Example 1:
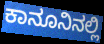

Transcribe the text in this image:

ಕಾನೂನಿನಲ್ಲಿ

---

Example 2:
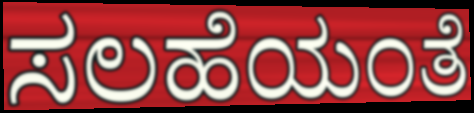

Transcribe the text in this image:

ಸಲಹೆಯಂತೆ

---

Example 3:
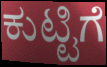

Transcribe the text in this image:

ಕುಟ್ಟಿಗೆ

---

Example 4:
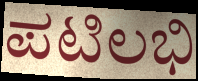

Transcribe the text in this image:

ಪಟಿಲಭಿ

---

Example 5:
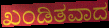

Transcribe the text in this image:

ಖಂಡಿತವಾದ